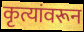
कृत्यांवरून